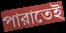
পারাতেই